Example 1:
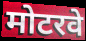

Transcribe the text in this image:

मोटरवे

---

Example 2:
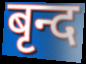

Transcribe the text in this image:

बृन्द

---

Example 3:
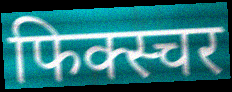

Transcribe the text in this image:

फिक्स्चर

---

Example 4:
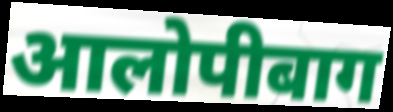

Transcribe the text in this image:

आलोपीबाग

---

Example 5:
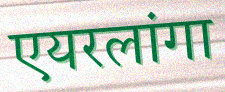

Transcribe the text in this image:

एयरलांगा